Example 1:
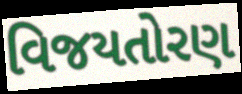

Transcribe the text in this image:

વિજયતોરણ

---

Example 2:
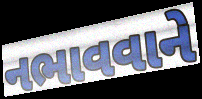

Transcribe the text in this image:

નભાવવાને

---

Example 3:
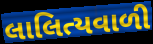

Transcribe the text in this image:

લાલિત્યવાળી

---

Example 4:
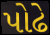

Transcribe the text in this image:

પોઢે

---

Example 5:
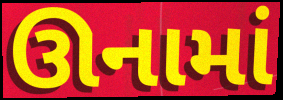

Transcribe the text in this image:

ઊનામાં